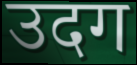
उदग